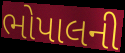
ભોપાલની